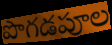
పొగడపూల